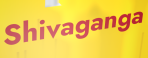
Shivaganga